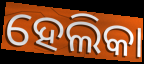
ହେଲିକା